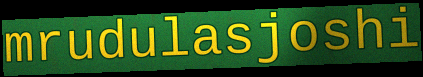
mrudulasjoshi